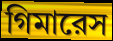
গিমারেস